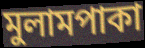
মুলামপাকা